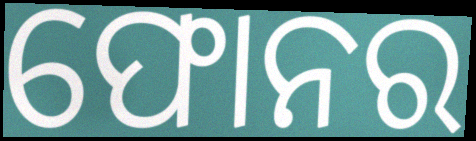
ଫୋନର